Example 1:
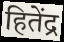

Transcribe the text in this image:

हितेंद्र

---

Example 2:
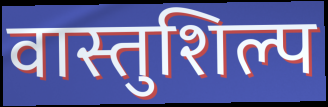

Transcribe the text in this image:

वास्तुशिल्प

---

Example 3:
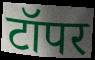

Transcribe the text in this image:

टॉपर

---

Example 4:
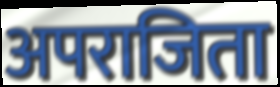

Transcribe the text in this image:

अपराजिता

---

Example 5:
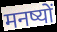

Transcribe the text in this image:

मनष्यों